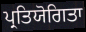
ਪ੍ਰਤਿਯੋਗਿਤਾ